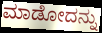
ಮಾಡೋದನ್ನು